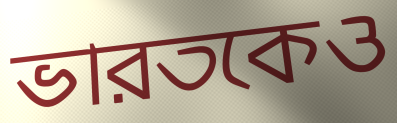
ভারতকেও